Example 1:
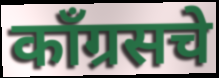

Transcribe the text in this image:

काँग्रसचे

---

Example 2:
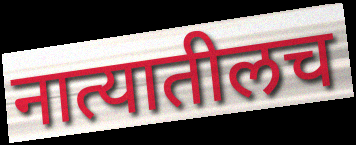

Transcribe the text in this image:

नात्यातीलच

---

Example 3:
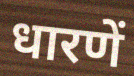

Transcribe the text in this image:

धारणें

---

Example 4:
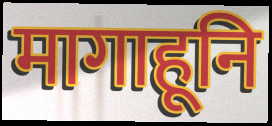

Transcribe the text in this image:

मागाहूनि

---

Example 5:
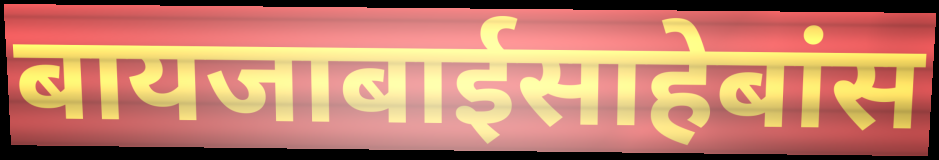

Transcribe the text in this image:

बायजाबाईसाहेबांस